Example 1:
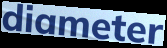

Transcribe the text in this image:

diameter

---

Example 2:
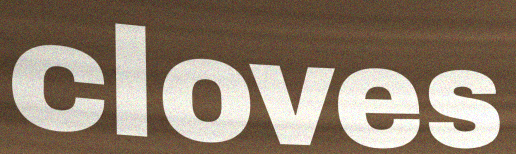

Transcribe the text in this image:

cloves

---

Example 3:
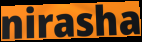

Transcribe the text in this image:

nirasha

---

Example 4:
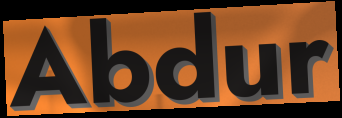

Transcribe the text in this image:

Abdur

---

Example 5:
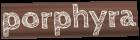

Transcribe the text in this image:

porphyra